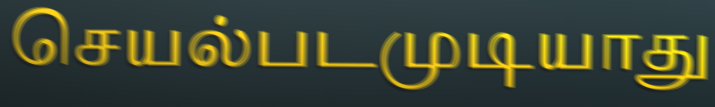
செயல்படமுடியாது